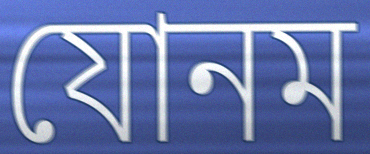
যোনম